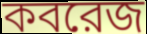
কবরেজ